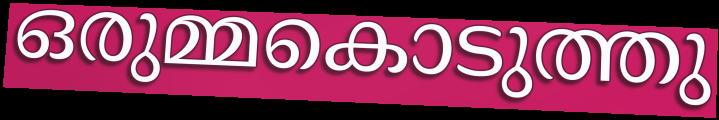
ഒരുമ്മകൊടുത്തു